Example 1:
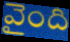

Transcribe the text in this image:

వైంది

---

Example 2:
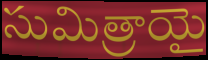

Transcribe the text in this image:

సుమిత్రాయై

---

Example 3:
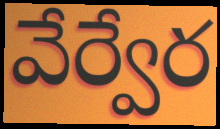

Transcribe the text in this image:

వేర్వేర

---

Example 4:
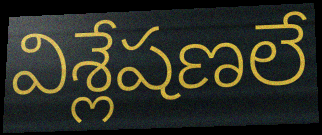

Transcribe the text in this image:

విశ్లేషణలే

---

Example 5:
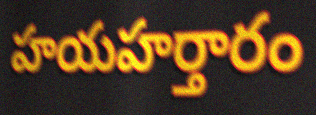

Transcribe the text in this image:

హయహర్తారం